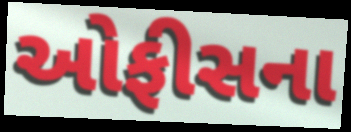
ઓફીસના